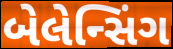
બેલેન્સિંગ